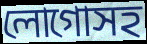
লোগোসহ